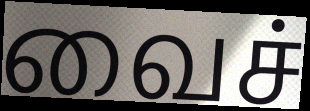
வைச்